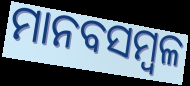
ମାନବସମ୍ବଳ